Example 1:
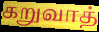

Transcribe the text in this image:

கறுவாத்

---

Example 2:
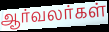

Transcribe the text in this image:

ஆர்வலர்கள்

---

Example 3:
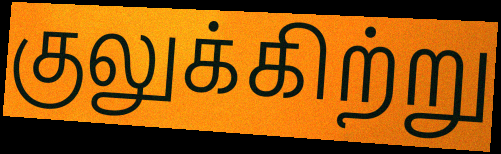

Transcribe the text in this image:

குலுக்கிற்று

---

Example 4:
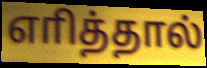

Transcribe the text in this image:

எரித்தால்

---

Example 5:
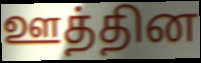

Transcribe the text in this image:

ஊத்தின